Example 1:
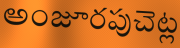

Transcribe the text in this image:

అంజూరపుచెట్ల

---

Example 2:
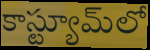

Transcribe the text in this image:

కాస్ట్యూమ్‌లో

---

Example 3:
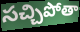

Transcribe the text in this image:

సచ్చిపోతా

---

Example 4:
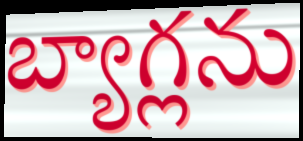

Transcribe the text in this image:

బ్యాగ్లను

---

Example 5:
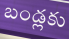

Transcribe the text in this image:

బండ్లకు